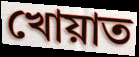
খোয়াত